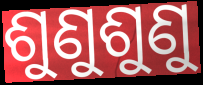
ଶୁଣୁଶୁଣୁ